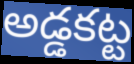
అడ్డకట్ట